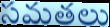
సమతలు